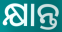
କ୍ଷାନ୍ତ